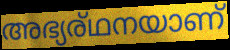
അഭ്യര്ഥനയാണ്